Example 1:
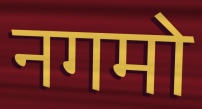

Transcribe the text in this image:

नगमो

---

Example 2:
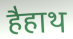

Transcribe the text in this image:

हैहाथ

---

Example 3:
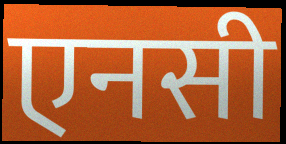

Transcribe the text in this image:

एनसी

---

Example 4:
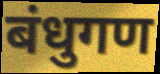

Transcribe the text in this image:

बंधुगण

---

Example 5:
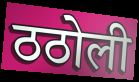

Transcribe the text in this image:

ठठोली